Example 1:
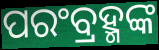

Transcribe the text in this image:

ପରଂବ୍ରହ୍ମଙ୍କ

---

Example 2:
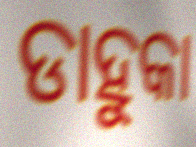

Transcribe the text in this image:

ଡାହୁକା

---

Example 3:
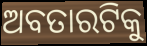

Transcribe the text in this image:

ଅବତାରଟିକୁ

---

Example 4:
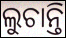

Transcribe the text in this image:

ଲୁଚାନ୍ତି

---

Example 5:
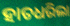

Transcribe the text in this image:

ହାତଧରିଲା